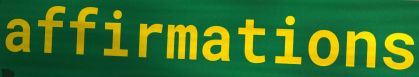
affirmations